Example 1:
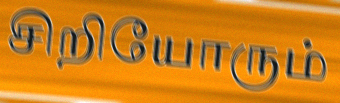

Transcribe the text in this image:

சிறியோரும்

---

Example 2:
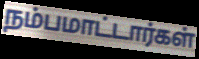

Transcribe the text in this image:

நம்பமாட்டார்கள்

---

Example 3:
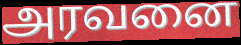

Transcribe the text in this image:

அரவனை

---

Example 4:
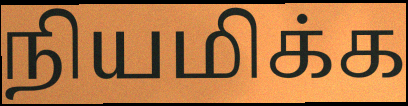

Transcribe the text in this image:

நியமிக்க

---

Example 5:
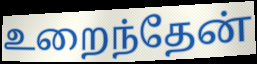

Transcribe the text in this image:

உறைந்தேன்